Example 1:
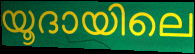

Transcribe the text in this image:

യൂദായിലെ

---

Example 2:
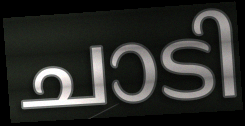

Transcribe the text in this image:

ചാടി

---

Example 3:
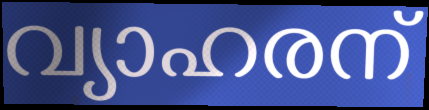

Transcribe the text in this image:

വ്യാഹരന്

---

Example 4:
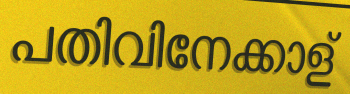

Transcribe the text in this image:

പതിവിനേക്കാള്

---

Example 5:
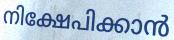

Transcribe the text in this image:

നിക്ഷേപിക്കാൻ